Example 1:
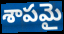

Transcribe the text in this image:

శాపమై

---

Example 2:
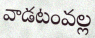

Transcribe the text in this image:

వాడటంవల్ల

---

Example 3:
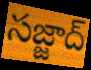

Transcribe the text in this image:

సజ్జాద్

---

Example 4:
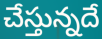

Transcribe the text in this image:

చేస్తున్నదే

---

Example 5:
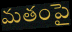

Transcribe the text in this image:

మతంపై